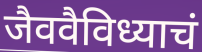
जैववैविध्याचं